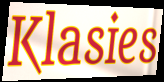
Klasies